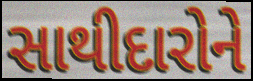
સાથીદારોને